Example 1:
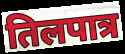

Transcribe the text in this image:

तिलपात्र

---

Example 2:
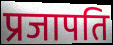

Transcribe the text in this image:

प्रजापति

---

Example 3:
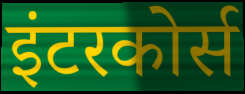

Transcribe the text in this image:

इंटरकोर्स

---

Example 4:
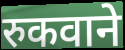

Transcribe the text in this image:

रुकवाने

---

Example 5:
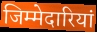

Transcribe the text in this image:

जिम्मेदारियां